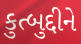
કુત્બુદ્દીને